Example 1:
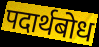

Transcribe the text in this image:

पदार्थबोध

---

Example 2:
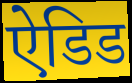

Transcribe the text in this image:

ऐडिड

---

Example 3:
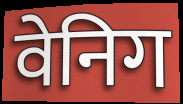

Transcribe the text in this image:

वेनिग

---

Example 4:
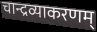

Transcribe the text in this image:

चान्द्रव्याकरणम्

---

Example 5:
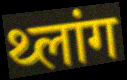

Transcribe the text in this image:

थ्लांग